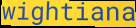
wightiana